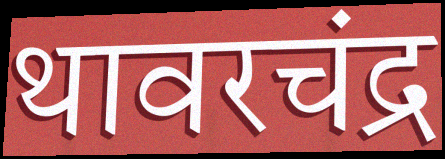
थावरचंद्र